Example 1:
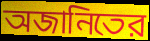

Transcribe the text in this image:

অজানিতের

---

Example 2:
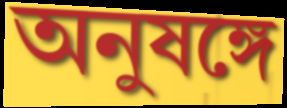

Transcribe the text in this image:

অনুষঙ্গে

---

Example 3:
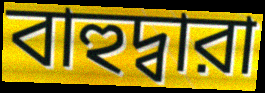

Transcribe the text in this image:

বাহুদ্বারা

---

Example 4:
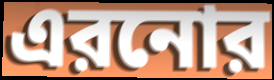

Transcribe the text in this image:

এরনোর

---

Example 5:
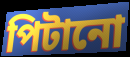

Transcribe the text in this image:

পিটানো